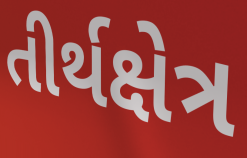
તીર્થક્ષેત્ર